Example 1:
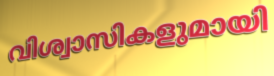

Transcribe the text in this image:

വിശ്വാസികളുമായി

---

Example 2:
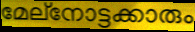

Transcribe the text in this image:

മേല്നോട്ടക്കാരും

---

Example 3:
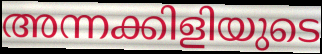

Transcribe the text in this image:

അന്നക്കിളിയുടെ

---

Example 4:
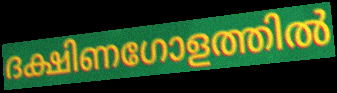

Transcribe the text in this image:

ദക്ഷിണഗോളത്തിൽ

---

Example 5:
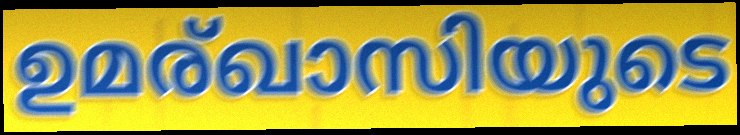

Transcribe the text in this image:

ഉമര്ഖാസിയുടെ